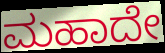
ಮಹಾದೇ